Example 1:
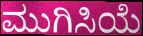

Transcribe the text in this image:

ಮುಗಿಸಿಯೆ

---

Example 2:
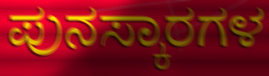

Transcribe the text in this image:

ಪುನಸ್ಕಾರಗಳ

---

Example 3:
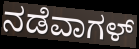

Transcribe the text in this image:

ನಡೆವಾಗಳ್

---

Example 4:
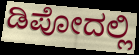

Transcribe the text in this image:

ಡಿಪೋದಲ್ಲಿ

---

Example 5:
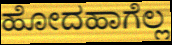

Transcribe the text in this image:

ಹೋದಹಾಗೆಲ್ಲ